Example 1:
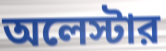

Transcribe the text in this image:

অলেস্টার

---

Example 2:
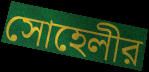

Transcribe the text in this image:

সোহেলীর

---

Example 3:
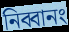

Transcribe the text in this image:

নিব্বানং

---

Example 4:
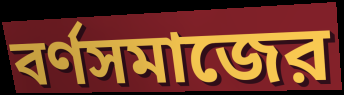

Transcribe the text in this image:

বর্ণসমাজের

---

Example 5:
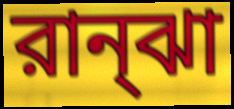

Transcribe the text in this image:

রান্ঝা